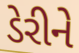
ડેરીને